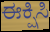
ಈಕ್ಷಿಸಿ